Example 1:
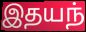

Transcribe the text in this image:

இதயந்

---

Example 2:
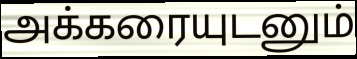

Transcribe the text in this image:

அக்கரையுடனும்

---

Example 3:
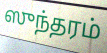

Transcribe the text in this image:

ஸுந்தரம்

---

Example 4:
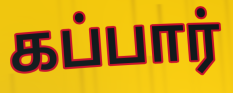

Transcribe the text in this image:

கப்பார்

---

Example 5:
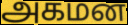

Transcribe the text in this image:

அகமன